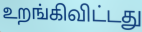
உறங்கிவிட்டது